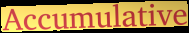
Accumulative